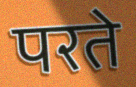
परते